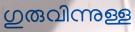
ഗുരുവിന്നുള്ള